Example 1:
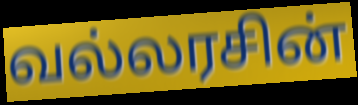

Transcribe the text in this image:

வல்லரசின்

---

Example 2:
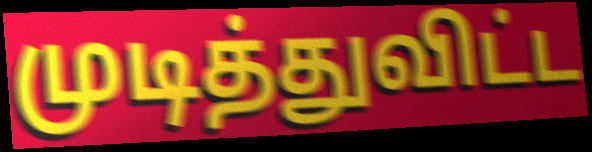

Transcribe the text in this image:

முடித்துவிட்ட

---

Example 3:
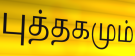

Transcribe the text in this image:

புத்தகமும்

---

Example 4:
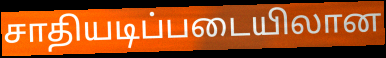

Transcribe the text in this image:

சாதியடிப்படையிலான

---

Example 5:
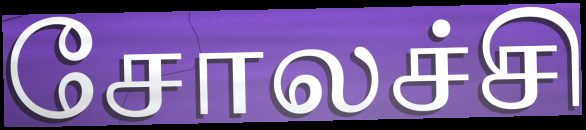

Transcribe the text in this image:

சோலச்சி